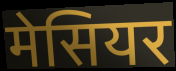
मेसियर